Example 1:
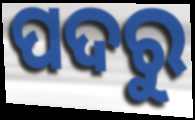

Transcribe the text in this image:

ପଦରୁ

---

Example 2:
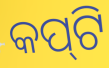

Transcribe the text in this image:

କପ୍‌ଟି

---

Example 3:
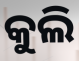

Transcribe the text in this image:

କୁଲି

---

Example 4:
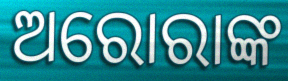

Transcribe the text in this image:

ଅରୋରାଙ୍କ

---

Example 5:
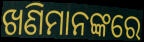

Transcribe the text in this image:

ଖଣିମାନଙ୍କରେ